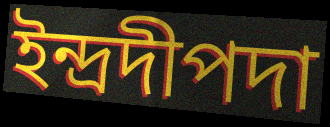
ইন্দ্রদীপদা